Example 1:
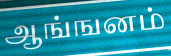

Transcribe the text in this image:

ஆங்ஙனம்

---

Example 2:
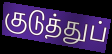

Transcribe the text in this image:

குடுத்துப்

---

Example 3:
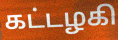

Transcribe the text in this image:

கட்டழகி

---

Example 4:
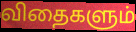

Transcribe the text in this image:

விதைகளும்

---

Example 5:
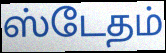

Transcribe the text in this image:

ஸ்டேதம்